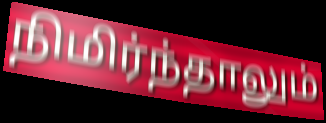
நிமிர்ந்தாலும்